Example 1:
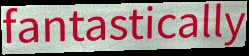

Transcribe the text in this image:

fantastically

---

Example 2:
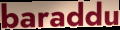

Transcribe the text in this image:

baraddu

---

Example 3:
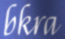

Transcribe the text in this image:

bkra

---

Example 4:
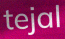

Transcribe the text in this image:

tejal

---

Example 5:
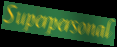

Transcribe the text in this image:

Superpersonal